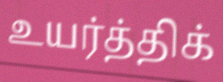
உயர்த்திக்